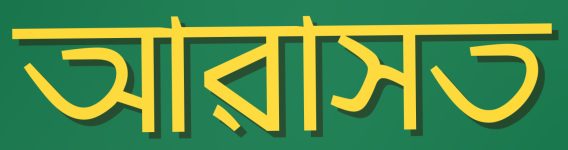
আৱাসত